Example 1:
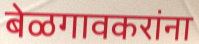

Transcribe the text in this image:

बेळगावकरांना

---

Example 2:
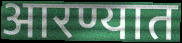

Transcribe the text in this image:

आरण्यात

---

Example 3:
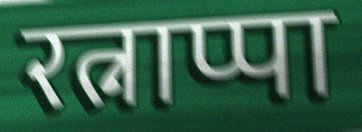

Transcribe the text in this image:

रत्नाप्पा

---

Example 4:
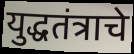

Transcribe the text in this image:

युद्धतंत्राचे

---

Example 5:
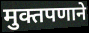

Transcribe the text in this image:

मुक्तपणाने